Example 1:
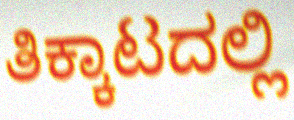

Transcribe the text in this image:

ತಿಕ್ಕಾಟದಲ್ಲಿ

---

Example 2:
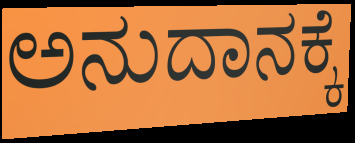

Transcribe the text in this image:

ಅನುದಾನಕ್ಕೆ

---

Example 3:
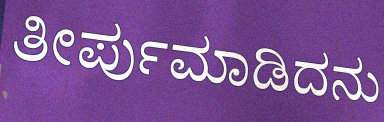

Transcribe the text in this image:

ತೀರ್ಪುಮಾಡಿದನು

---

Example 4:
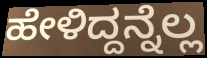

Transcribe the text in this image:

ಹೇಳಿದ್ದನ್ನೆಲ್ಲ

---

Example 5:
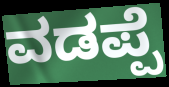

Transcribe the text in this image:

ವಡಪ್ಪೆ